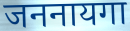
जननायगा